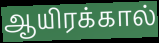
ஆயிரக்கால்